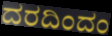
ದರದಿಂದಂ